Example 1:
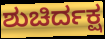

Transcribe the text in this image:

ಶುಚಿರ್ದಕ್ಷ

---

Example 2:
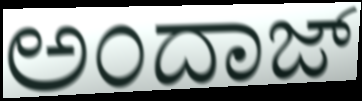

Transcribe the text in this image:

ಅಂದಾಜ್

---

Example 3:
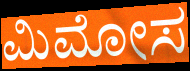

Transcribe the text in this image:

ಮಿಮೋಸ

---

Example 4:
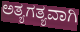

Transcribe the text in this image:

ಅತ್ಯಗತ್ಯವಾಗಿ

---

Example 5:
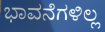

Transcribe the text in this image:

ಭಾವನೆಗಳಿಲ್ಲ